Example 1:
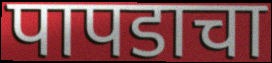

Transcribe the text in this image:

पापडाचा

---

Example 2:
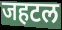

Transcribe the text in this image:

जहटल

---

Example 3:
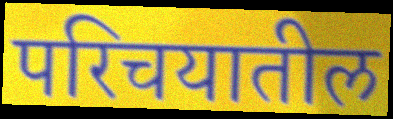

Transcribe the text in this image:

परिचयातील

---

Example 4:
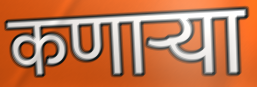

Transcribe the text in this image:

कणाऱ्या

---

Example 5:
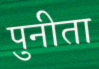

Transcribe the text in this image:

पुनीता